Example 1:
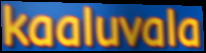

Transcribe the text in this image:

kaaluvala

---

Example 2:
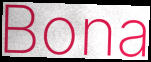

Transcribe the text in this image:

Bona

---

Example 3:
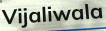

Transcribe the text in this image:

Vijaliwala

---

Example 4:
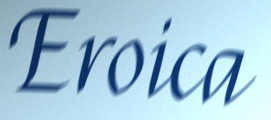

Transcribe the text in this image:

Eroica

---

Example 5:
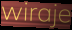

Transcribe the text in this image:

wiraje